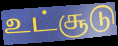
உட்சூடு